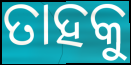
ତାହକୁ